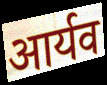
आर्यव